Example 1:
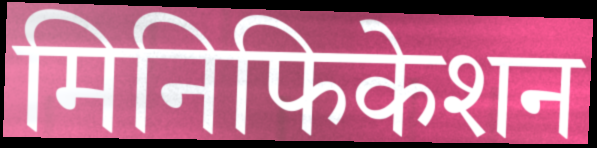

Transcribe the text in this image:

मिनिफिकेशन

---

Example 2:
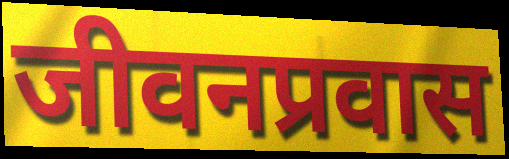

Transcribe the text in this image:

जीवनप्रवास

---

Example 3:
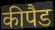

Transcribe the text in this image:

कीपैड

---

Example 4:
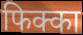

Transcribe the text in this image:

फिक्का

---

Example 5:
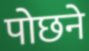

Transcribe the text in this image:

पोछने